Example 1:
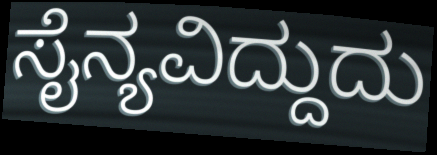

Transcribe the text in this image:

ಸೈನ್ಯವಿದ್ದುದು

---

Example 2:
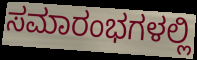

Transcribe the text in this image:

ಸಮಾರಂಭಗಳಲ್ಲಿ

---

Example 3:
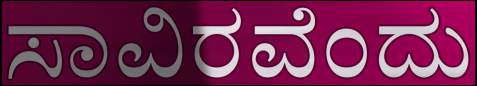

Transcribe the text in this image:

ಸಾವಿರವೆಂದು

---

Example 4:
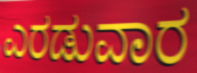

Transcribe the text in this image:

ಎರಡುವಾರ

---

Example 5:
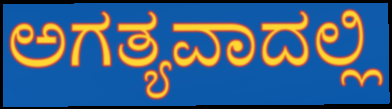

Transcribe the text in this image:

ಅಗತ್ಯವಾದಲ್ಲಿ